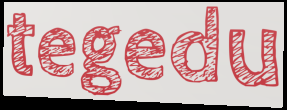
tegedu